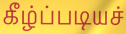
கீழ்ப்படியச்